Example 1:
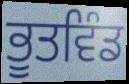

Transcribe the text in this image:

ਭੂਤਵਿੰਡ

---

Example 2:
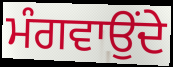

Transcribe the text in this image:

ਮੰਗਵਾਉਂਦੇ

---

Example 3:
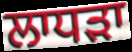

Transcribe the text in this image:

ਲਾਧੜਾ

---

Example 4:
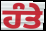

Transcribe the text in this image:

ਹੰਤੇ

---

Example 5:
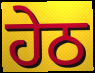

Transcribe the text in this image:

ਹੇਠ